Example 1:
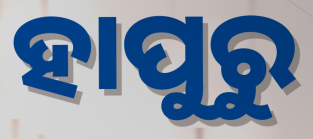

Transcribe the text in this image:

ହାପୁରୁ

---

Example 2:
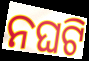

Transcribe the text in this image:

ନଘଟି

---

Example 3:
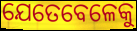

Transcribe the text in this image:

ଯେତେବେଳେକୁ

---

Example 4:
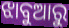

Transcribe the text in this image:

ଝାବୁଆରୁ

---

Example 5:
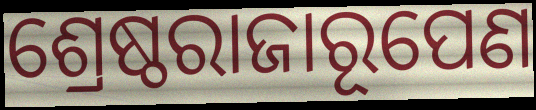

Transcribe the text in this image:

ଶ୍ରେଷ୍ଠରାଜାରୂପେଣ